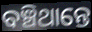
ବଞ୍ଚିଥାନ୍ତେ